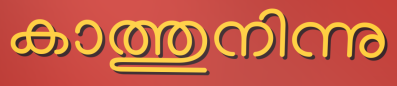
കാത്തുനിന്നു